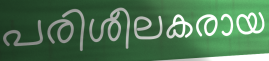
പരിശീലകരായ